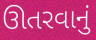
ઊતરવાનું